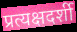
प्रत्यक्षदर्शी